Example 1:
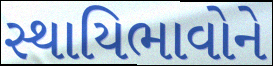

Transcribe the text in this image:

સ્થાયિભાવોને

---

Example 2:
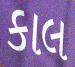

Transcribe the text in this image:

કાલ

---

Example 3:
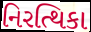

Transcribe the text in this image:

નિરત્થિકા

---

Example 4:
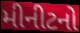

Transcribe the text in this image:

મીનીટનો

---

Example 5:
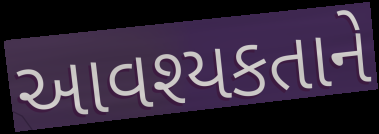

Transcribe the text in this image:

આવશ્યકતાને